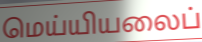
மெய்யியலைப்